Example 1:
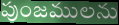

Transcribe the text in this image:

పుంజములను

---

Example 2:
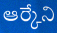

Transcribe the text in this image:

ఆర్కేని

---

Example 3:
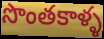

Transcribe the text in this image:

సొంతకాళ్ళ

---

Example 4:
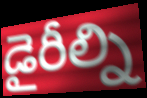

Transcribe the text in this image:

డైరీల్ని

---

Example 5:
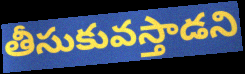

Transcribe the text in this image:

తీసుకువస్తాడని